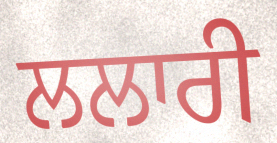
ਲਲਾਰੀ